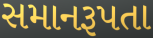
સમાનરૂપતા